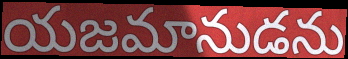
యజమానుడను